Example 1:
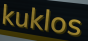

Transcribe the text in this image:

kuklos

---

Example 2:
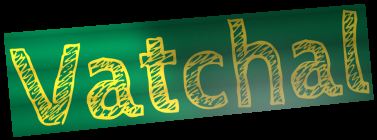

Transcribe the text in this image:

Vatchal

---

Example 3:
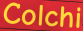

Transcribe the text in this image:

Colchi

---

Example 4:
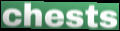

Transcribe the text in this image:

chests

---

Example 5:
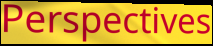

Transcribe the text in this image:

Perspectives